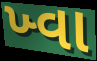
ખ્વા